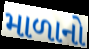
માળાનો